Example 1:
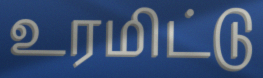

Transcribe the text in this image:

உரமிட்டு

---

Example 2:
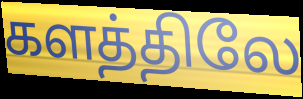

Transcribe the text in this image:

களத்திலே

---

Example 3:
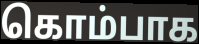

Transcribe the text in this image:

கொம்பாக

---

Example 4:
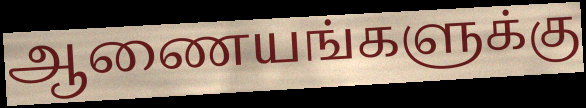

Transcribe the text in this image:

ஆணையங்களுக்கு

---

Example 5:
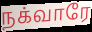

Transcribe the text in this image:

நக்வாரே